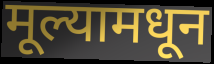
मूल्यामधून